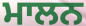
ਮਾਲਨ